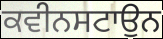
ਕਵੀਨਸਟਾਉਨ